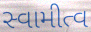
સ્વામીત્વ